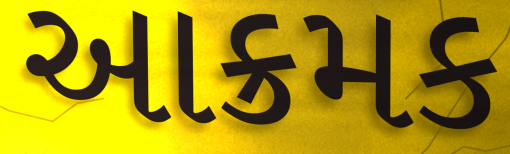
આક્રમક